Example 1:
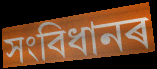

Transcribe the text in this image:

সংবিধানৰ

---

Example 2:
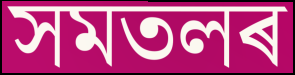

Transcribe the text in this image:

সমতলৰ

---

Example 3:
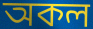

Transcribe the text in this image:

অকল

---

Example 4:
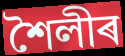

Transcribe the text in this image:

শৈলীৰ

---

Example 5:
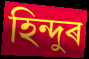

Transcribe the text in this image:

হিন্দুৰ